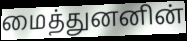
மைத்துனனின்